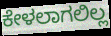
ಕೇಳಲಾಗಲಿಲ್ಲ